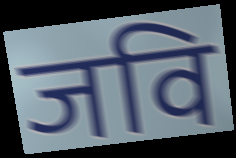
जवि